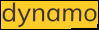
dynamo